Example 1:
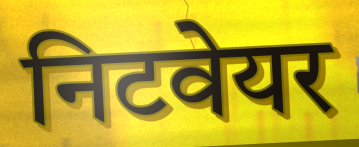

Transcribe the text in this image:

निटवेयर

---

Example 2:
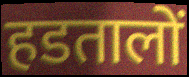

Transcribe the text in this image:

हडतालों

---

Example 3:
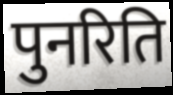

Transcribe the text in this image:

पुनरिति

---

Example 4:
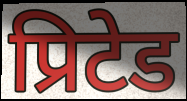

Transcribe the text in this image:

प्रिटेड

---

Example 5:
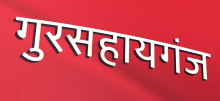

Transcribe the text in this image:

गुरसहायगंज